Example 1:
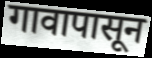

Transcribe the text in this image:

गावापासून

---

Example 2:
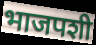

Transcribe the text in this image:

भाजपशी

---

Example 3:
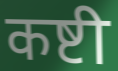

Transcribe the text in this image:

कष्टी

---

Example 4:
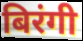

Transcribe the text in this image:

बिरंगी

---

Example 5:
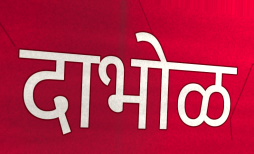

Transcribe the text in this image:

दाभोळ